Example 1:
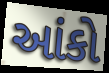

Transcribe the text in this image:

આંકો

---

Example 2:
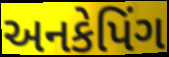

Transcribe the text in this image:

અનકેપિંગ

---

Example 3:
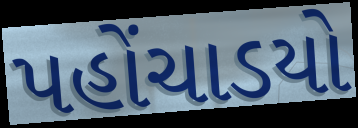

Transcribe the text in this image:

પહોંચાડયો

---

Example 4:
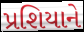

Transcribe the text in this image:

પ્રશિયાને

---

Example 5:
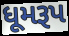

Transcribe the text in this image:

ધૂમરૂપ